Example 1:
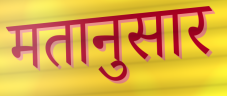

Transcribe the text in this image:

मतानुसार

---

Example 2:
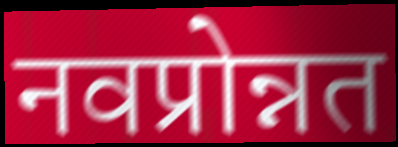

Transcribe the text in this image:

नवप्रोन्नत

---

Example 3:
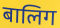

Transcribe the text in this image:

बालिग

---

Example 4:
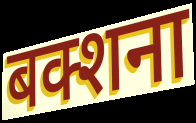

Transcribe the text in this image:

बक्शना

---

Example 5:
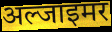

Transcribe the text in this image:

अल्जाइमर